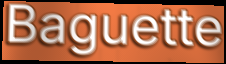
Baguette